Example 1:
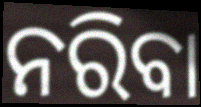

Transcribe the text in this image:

ନରିବା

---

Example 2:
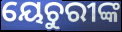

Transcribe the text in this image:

ୟେଚୁରୀଙ୍କ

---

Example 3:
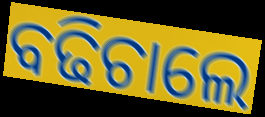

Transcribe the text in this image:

ବଢିଚାଲେ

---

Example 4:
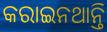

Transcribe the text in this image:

କରାଇନଥାନ୍ତି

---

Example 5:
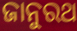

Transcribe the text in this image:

ଜାନୁରଥ